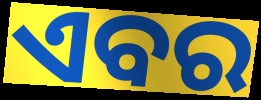
ଏବର